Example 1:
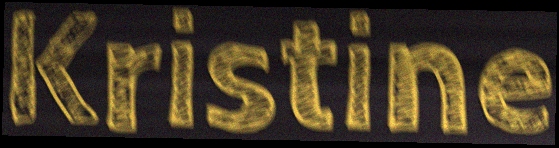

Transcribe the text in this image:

Kristine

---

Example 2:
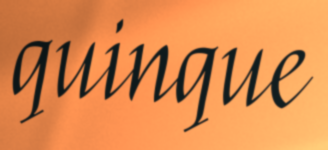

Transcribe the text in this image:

quinque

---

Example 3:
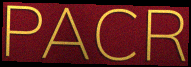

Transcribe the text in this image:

PACR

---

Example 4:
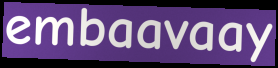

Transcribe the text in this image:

embaavaay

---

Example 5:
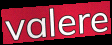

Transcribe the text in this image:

valere